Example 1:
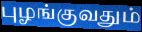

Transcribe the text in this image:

புழங்குவதும்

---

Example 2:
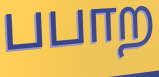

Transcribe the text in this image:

பபாற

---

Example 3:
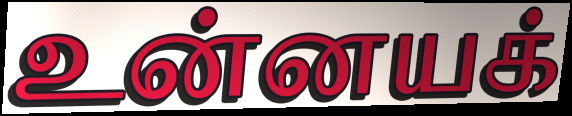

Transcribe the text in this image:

உன்னயக்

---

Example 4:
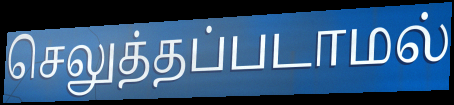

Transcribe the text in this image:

செலுத்தப்படாமல்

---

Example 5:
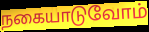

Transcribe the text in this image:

நகையாடுவோம்